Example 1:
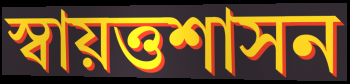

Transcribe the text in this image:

স্বায়ত্তশাসন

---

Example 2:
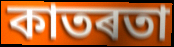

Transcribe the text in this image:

কাতৰতা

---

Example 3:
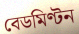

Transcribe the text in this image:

বেডমিণ্টন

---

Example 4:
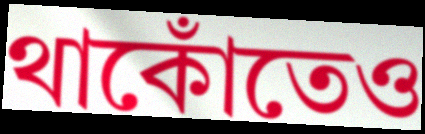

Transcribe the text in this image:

থাকোঁতেও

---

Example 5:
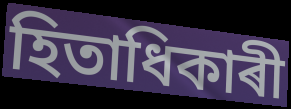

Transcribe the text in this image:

হিতাধিকাৰী